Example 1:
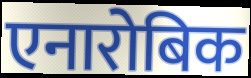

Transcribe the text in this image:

एनारोबिक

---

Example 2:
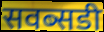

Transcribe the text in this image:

सवब्सडी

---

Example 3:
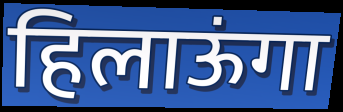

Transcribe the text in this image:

हिलाऊंगा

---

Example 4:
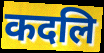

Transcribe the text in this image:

कदलि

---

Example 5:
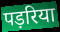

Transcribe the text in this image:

पड़रिया